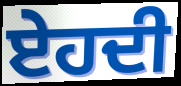
ਏਹਦੀ